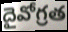
దైవోగ్రత